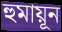
হুমায়ূন